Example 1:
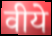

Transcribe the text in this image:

वीये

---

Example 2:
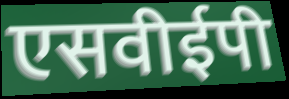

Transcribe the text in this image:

एसवीईपी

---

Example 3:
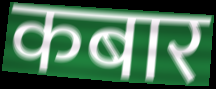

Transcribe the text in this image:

कबार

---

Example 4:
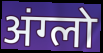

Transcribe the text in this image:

अंग्लो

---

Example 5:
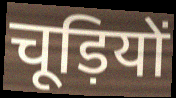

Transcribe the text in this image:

चूड़ियों